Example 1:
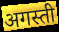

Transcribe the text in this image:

अगस्ती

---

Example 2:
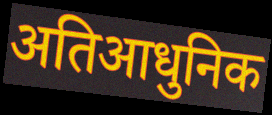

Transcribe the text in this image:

अतिआधुनिक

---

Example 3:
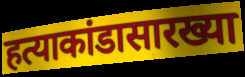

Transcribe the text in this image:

हत्याकांडासारख्या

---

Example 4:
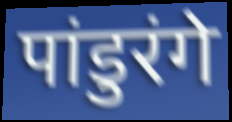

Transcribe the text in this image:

पांडुरंगे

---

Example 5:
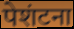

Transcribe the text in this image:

पेशंटना